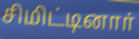
சிமிட்டினார்